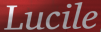
Lucile